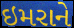
ઇમરાને